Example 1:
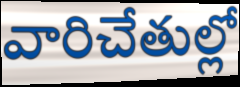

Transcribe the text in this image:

వారిచేతుల్లో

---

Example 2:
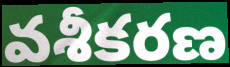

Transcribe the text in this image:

వశీకరణ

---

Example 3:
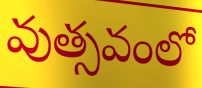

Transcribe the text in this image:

వుత్సవంలో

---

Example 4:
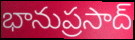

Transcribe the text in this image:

భానుప్రసాద్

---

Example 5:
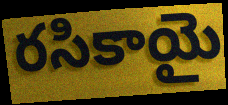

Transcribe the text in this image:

రసికాయై